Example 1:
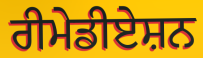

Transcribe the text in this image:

ਰੀਮੇਡੀਏਸ਼ਨ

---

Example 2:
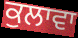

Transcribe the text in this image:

ਕੁਲਾਵਾ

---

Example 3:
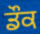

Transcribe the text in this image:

ਡੌਕ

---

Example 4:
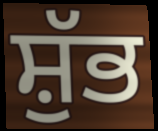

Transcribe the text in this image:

ਸ਼ੁੱਭ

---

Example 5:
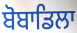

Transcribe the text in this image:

ਬੋਬਾਡਿਲਾ